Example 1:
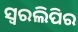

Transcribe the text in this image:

ସ୍ୱରଲିପିର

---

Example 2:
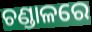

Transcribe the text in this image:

ଚଣ୍ଡାଳରେ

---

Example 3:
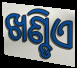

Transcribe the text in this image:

ଖଣ୍ଡିଏ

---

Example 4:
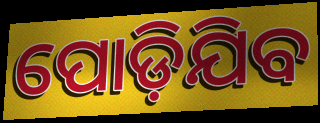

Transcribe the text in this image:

ପୋଡ଼ିଯିବ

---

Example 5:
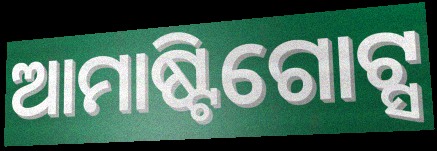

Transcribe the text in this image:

ଆମାଷ୍ଟିଗୋଟ୍ସ